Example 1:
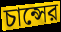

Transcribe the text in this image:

চান্সের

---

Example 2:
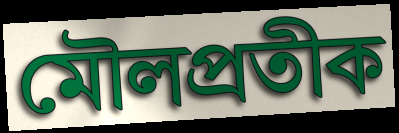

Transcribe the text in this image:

মৌলপ্রতীক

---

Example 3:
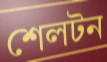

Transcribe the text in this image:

শেলটন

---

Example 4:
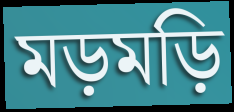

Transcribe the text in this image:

মড়মড়ি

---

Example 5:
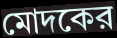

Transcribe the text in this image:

মোদকের